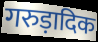
गरुड़ादिक